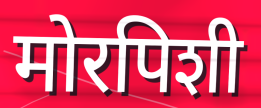
मोरपिशी